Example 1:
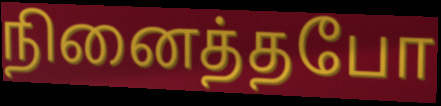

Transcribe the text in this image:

நினைத்தபோ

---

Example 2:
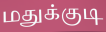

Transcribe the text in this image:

மதுக்குடி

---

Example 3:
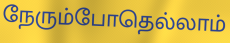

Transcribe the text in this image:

நேரும்போதெல்லாம்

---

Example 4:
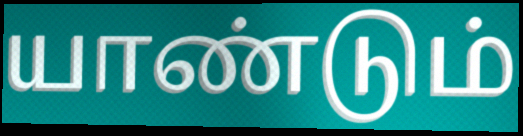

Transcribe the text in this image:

யாண்டும்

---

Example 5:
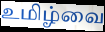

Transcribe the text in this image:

உமிழ்வை